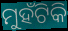
ମୁହଁଟିକି